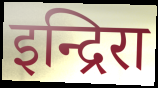
इन्द्रिरा